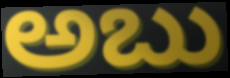
ಅಬು